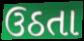
ઉઠતા